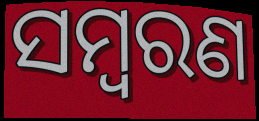
ସମ୍ୱରଣ